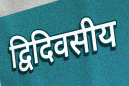
द्विदिवसीय